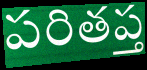
పరితప్త